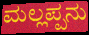
ಮಲ್ಲಪ್ಪನು